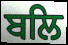
ਬਲਿ